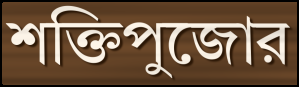
শক্তিপুজোর